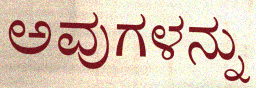
ಅವುಗಳನ್ನು